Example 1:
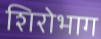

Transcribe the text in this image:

शिरोभाग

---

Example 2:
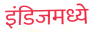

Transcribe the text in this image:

इंडिजमध्ये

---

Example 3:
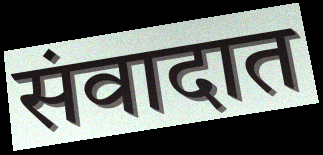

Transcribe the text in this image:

संवादात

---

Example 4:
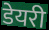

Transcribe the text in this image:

डेयरी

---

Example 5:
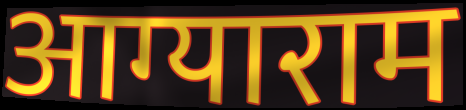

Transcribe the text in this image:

आग्याराम